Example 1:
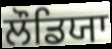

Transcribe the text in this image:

ਲੌਡਿਯਾ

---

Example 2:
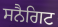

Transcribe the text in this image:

ਸਨੈਗਿਟ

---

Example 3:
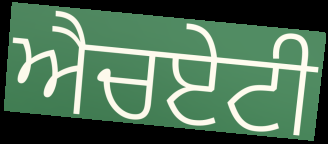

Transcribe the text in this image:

ਐਚਏਟੀ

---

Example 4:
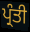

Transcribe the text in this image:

ਪ੍ਰੰਤੀ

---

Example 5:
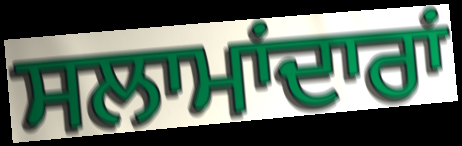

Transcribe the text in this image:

ਸਲਾਮਾਂਦਾਰਾਂ